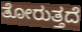
ತೋರುತ್ತದೆ